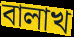
বালাখ